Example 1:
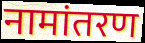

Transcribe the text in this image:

नामांतरण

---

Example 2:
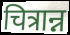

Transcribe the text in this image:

चित्रान्न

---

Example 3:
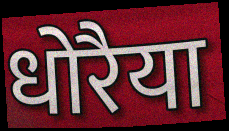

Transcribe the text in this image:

धोरैया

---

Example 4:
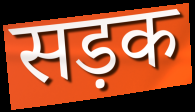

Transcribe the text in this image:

सड़क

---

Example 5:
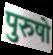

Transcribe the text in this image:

पुरुषो